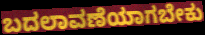
ಬದಲಾವಣೆಯಾಗಬೇಕು